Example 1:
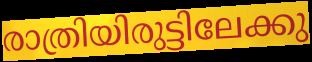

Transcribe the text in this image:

രാത്രിയിരുട്ടിലേക്കു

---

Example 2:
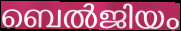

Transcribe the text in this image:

ബെൽജിയം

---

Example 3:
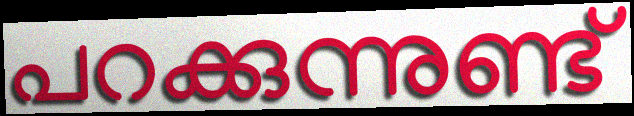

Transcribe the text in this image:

പറക്കുന്നുണ്ട്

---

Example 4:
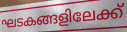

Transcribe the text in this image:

ഘടകങ്ങളിലേക്ക്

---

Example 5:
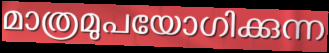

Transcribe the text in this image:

മാത്രമുപയോഗിക്കുന്ന